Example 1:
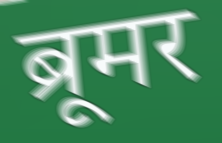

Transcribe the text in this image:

ब्रूमर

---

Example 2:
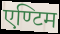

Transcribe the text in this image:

एण्टिम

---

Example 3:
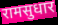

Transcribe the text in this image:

रामसुधार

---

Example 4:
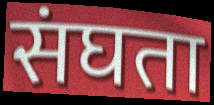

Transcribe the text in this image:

संघता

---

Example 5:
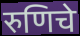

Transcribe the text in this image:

रुणिचे